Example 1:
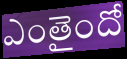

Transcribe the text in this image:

ఎంతైందో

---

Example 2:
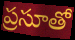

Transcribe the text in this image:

ప్రసూతో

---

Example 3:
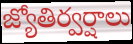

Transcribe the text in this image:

జ్యోతిర్వర్షాలు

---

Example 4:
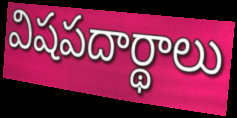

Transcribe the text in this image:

విషపదార్థాలు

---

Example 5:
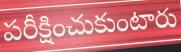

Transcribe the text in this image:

పరీక్షించుకుంటారు